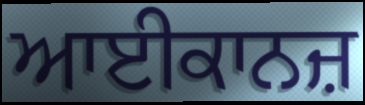
ਆਈਕਾਨਜ਼